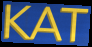
KAT